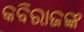
କବିରାଜଙ୍କ